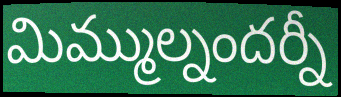
మిమ్ముల్నందర్నీ